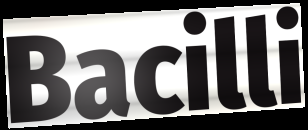
Bacilli